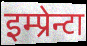
इम्प्रेन्टा